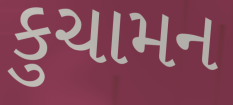
કુચામન